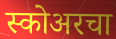
स्कोअरचा